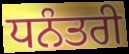
ਧਨੰਤਰੀ